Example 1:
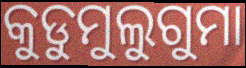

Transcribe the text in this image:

କୁଡୁମୁଲୁଗୁମା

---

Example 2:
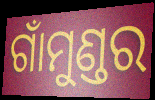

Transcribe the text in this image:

ଗାଁମୁଣ୍ଡର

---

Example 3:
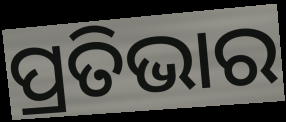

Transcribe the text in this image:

ପ୍ରତିଭାର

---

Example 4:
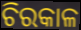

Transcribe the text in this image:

ଚିରକାଳ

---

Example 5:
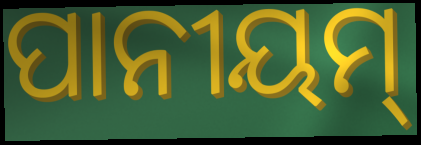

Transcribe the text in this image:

ପାନୀୟମ୍